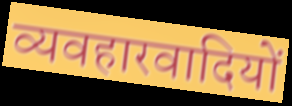
व्यवहारवादियों